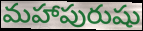
మహాపురుషు